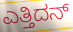
ಎತ್ತಿದನ್